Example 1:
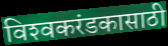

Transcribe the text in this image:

विश्वकरंडकासाठी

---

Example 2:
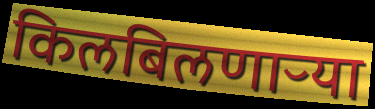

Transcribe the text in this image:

किलबिलणाऱ्या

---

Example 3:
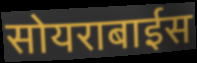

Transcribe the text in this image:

सोयराबाईस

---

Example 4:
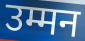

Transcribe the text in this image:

उम्मन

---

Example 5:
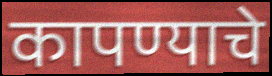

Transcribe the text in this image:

कापण्याचे